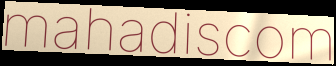
mahadiscom